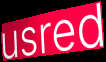
usred